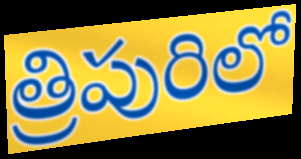
త్రిపురిలో